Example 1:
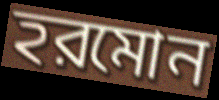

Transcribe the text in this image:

হরমোন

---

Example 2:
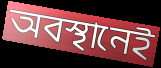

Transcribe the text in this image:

অবস্থানেই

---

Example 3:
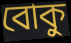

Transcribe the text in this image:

বোকু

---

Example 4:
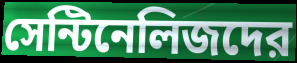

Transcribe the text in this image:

সেন্টিনেলিজদের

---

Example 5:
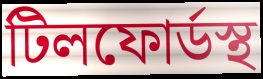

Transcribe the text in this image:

টিলফোর্ডস্থ